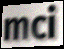
mci